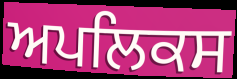
ਅਪਲਿਕਸ